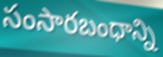
సంసారబంధాన్ని